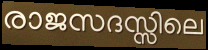
രാജസദസ്സിലെ